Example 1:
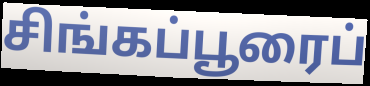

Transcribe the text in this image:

சிங்கப்பூரைப்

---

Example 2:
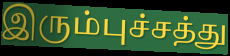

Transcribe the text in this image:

இரும்புச்சத்து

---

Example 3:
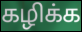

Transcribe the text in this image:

கழிக்க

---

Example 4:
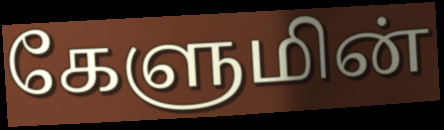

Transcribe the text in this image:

கேளுமின்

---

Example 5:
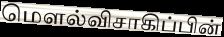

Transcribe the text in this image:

மௌல்விசாகிப்பின்